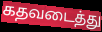
கதவடைத்து